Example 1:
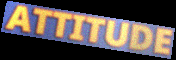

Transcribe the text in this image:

ATTITUDE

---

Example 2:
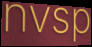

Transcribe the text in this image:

nvsp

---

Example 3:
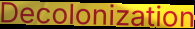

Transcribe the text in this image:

Decolonization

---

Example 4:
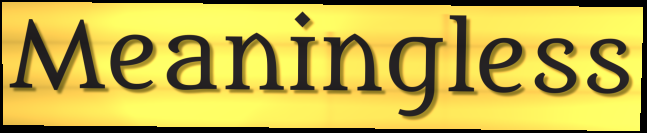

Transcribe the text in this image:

Meaningless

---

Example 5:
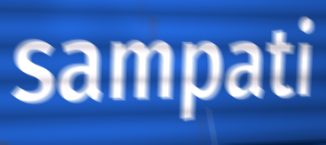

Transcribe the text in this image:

sampati